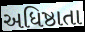
અધિષ્ઠાતા